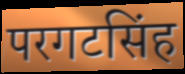
परगटसिंह